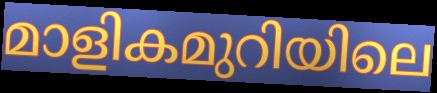
മാളികമുറിയിലെ